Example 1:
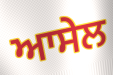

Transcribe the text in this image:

ਆਸੇਲ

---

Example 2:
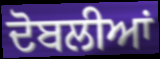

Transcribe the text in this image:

ਦੋਬਲੀਆਂ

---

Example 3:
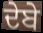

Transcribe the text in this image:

ਦੇਬੇ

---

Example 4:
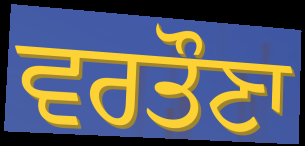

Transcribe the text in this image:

ਵਰਤੌਣਾ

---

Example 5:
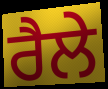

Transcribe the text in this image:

ਰੈਲੇ